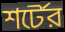
শর্টের